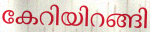
കേറിയിറങ്ങി